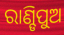
ରାଣ୍ଡିପୁଅ